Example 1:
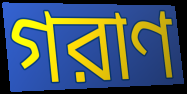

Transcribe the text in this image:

গরাণ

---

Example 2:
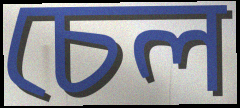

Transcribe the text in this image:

চেল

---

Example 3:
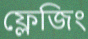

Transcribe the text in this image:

ফ্লেজিং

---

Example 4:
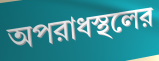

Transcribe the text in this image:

অপরাধস্থলের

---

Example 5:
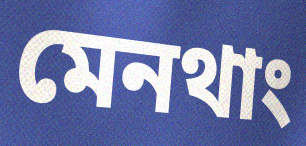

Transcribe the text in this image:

মেনথাং